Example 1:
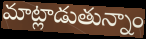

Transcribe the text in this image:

మాట్లాడుతున్నాం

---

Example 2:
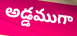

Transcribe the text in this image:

అడ్డముగా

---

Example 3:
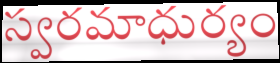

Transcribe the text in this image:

స్వరమాధుర్యం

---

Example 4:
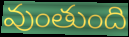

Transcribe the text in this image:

వుంతుంది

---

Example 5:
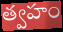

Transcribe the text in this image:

త్వహం